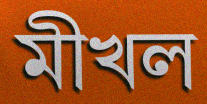
মীখল